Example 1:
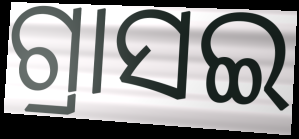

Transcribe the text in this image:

ଗ୍ରାସଇ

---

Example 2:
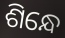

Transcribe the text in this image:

ଶିନ୍ଧେ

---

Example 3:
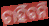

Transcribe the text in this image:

ଚାହିଁବନି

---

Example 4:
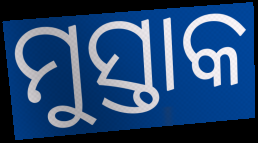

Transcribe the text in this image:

ମୁସ୍ତାକ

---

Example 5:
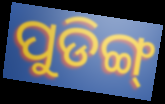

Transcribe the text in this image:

ପୁଡିଙ୍ଗ୍